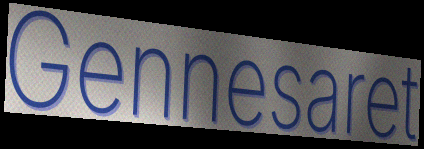
Gennesaret